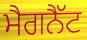
ਮੈਗਨੈੱਟ